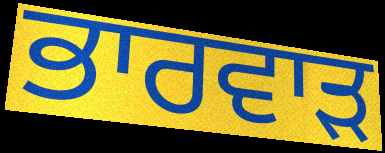
ਭਾਰਵਾੜ